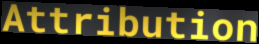
Attribution